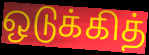
ஒடுக்கித்